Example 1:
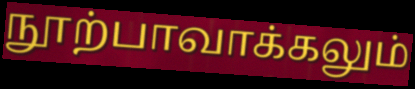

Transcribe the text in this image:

நூற்பாவாக்கலும்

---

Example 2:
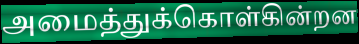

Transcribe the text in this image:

அமைத்துக்கொள்கின்றன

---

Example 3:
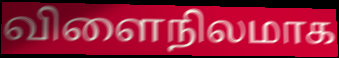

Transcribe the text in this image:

விளைநிலமாக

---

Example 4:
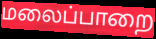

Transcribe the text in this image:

மலைப்பாறை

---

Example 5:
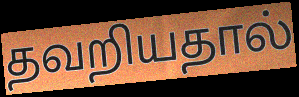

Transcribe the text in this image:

தவறியதால்